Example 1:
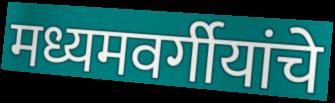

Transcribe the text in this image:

मध्यमवर्गीयांचे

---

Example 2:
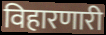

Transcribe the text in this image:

विहारणारी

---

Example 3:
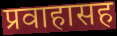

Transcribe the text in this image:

प्रवाहासह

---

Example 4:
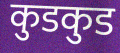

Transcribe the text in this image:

कुडकुड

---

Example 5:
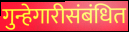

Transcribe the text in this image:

गुन्हेगारीसंबंधित